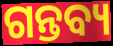
ଗନ୍ତବ୍ୟ